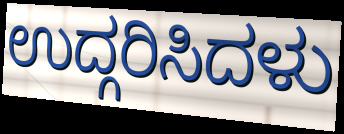
ಉದ್ಗರಿಸಿದಳು